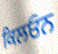
ਕਿਲਓਨ